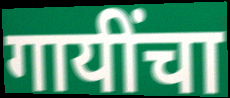
गायींचा